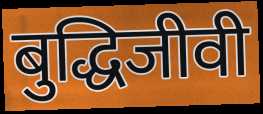
बुद्धिजीवी